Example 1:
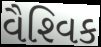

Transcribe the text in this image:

વૈશ્‍વિક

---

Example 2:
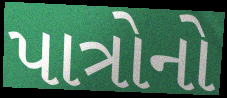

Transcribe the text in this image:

પાત્રોનો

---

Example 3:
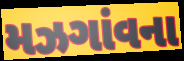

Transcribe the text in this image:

મઝગાંવના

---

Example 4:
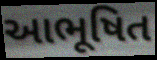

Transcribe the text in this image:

આભૂષિત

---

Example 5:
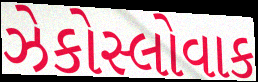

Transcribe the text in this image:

ઝેકોસ્લોવાક